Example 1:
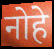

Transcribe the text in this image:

नोहे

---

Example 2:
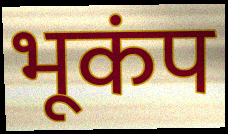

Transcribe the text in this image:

भूकंप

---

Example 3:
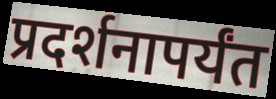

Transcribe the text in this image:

प्रदर्शनापर्यंत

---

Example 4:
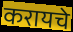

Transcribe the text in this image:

करायचे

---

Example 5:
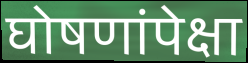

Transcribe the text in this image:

घोषणांपेक्षा